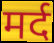
मर्द